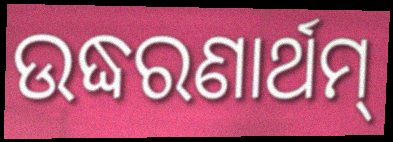
ଉଦ୍ଧରଣାର୍ଥମ୍